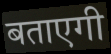
बताएगी